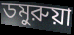
ডমুরুয়া